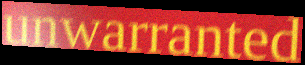
unwarranted